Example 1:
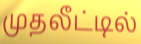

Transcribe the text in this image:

முதலீட்டில்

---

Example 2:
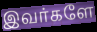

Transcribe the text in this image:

இவர்களே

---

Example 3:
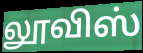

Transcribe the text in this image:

லூவிஸ்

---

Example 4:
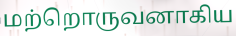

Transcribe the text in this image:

மற்றொருவனாகிய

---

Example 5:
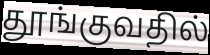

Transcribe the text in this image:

தூங்குவதில்